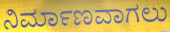
ನಿರ್ಮಾಣವಾಗಲು